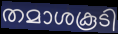
തമാശകൂടി